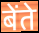
बेंते